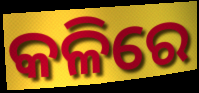
କଳିରେ